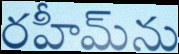
రహీమ్‌ను